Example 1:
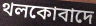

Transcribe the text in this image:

থলকোবাদে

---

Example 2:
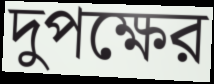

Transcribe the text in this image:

দুপক্ষের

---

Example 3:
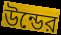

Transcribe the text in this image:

উন্ডের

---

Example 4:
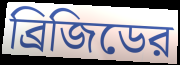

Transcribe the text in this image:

ব্রিজিডের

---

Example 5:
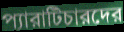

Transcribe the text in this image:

প্যারাটিচারদের